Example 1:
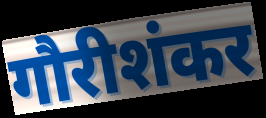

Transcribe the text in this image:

गौरीशंकर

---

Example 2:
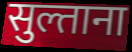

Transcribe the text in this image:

सुल्ताना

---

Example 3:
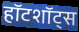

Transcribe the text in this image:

हॉटशॉट्स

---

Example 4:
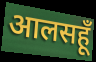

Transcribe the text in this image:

आलसहूँ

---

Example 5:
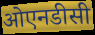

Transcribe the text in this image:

ओएनडीसी